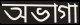
অভাগা